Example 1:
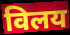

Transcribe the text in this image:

विलय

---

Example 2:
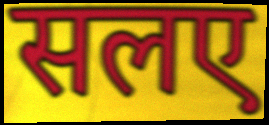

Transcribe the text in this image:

सलए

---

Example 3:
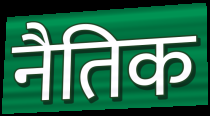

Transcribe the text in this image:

नैतिक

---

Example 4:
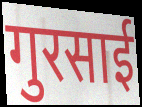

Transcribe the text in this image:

गुरसाई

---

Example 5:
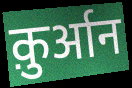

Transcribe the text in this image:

क़ुर्आन